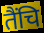
तैंचि